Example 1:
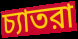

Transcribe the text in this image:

চ্যাতরা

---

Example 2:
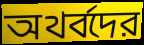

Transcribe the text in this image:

অথর্বদের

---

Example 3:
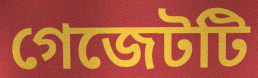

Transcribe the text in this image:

গেজেটটি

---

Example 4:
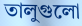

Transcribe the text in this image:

তালুগুলো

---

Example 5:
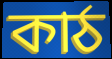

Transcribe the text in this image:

কাঠ